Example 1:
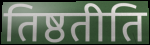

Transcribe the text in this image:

तिष्ठतीति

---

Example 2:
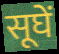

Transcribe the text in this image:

सूघें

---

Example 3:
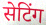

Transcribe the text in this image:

सेटिंग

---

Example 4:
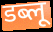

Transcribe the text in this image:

डब्लू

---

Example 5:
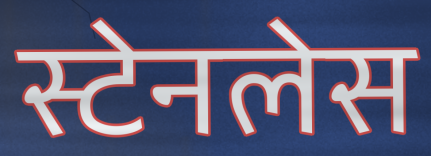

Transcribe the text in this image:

स्टेनलेस